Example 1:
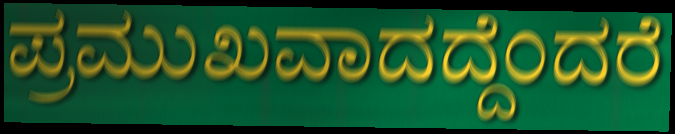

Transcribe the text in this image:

ಪ್ರಮುಖವಾದದ್ದೆಂದರೆ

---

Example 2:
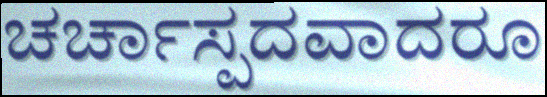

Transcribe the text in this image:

ಚರ್ಚಾಸ್ಪದವಾದರೂ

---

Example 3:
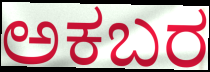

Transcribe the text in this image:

ಅಕಬರ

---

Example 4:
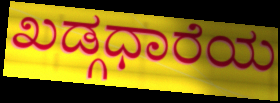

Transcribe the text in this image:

ಖಡ್ಗಧಾರೆಯ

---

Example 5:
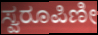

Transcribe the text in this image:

ಸ್ವರೂಪಿಣೀ